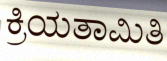
ಕ್ರಿಯತಾಮಿತಿ